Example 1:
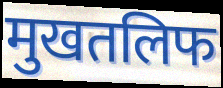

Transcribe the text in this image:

मुखतलिफ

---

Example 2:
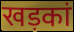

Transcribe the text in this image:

खड़कां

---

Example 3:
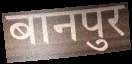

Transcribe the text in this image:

बानपुर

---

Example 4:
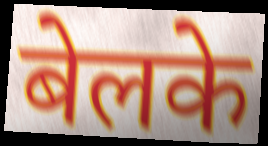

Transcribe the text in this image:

बेलके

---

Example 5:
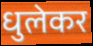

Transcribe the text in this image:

धुलेकर